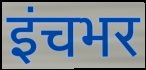
इंचभर